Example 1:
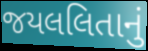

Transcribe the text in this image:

જયલલિતાનું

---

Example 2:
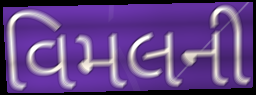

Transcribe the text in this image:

વિમલની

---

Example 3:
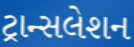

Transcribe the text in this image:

ટ્રાન્સલેશન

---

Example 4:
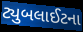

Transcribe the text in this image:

ટ્યુબલાઈટના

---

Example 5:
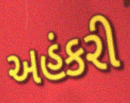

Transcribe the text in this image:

અહંકરી